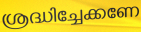
ശ്രദ്ധിച്ചേക്കണേ